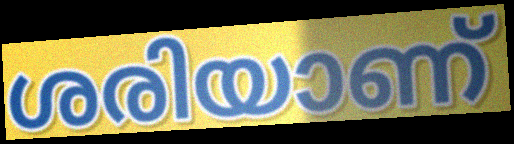
ശരിയാണ്